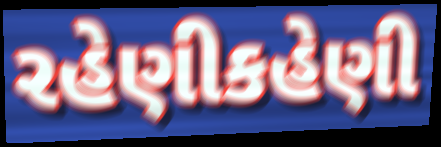
રહેણીકહેણી